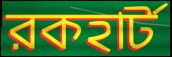
রকহার্ট